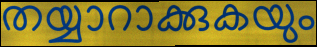
തയ്യാറാക്കുകയും